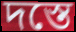
দস্তে